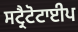
ਸਟ੍ਰੈਟੋਟਾਈਪ